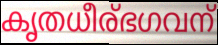
കൃതധീര്ഭഗവന്